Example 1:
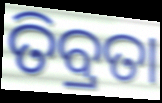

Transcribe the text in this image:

ତିବ୍ରତା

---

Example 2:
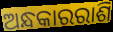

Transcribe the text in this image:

ଅନ୍ଧକାରରାଶି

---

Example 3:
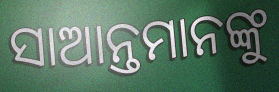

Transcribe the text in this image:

ସାଆନ୍ତମାନଙ୍କୁ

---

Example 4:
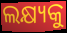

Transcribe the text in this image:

ଲକ୍ଷ୍ୟକୁ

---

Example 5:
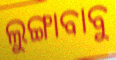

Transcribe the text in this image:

ଲୁଙ୍ଗାବାବୁ